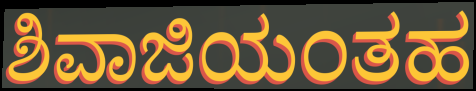
ಶಿವಾಜಿಯಂತಹ